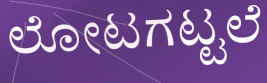
ಲೋಟಗಟ್ಟಲೆ